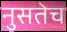
नुसतेच